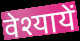
वेश्यायें